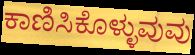
ಕಾಣಿಸಿಕೊಳ್ಳುವುವು